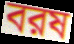
বরষ